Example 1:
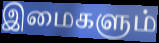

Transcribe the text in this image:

இமைகளும்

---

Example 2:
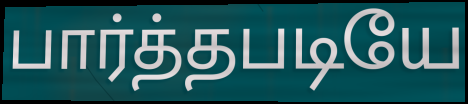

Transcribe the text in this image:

பார்த்தபடியே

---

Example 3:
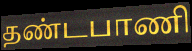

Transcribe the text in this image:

தண்டபாணி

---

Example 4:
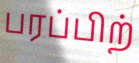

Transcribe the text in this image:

பரப்பிற்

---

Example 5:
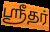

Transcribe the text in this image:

ஸ்ரீதர்